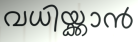
വധിയ്ക്കാൻ